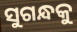
ସୁଗନ୍ଧକୁ